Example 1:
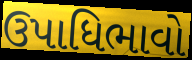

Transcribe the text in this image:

ઉપાધિભાવો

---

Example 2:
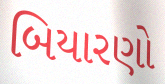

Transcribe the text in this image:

બિયારણો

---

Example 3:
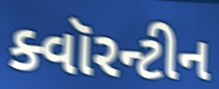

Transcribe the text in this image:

ક્વૉરન્ટીન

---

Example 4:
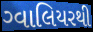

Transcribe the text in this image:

ગ્વાલિયરથી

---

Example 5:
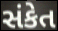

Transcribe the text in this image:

સંકેત